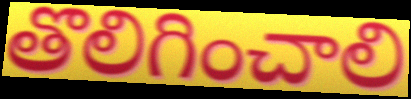
తొలిగించాలి